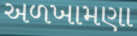
અળખામણા